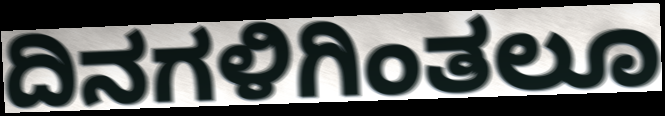
ದಿನಗಳಿಗಿಂತಲೂ